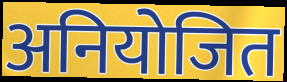
अनियोजित